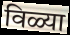
विळ्या